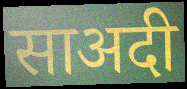
साअदी